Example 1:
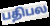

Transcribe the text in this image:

பதிபல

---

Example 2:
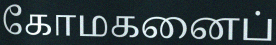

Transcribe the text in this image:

கோமகனைப்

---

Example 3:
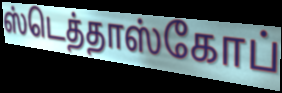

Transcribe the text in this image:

ஸ்டெத்தாஸ்கோப்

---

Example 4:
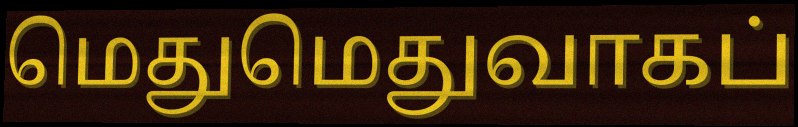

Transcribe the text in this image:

மெதுமெதுவாகப்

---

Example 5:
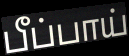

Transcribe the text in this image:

பீப்பாய்